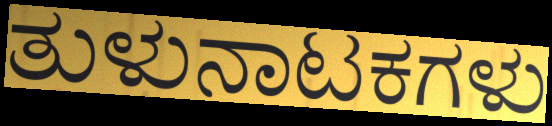
ತುಳುನಾಟಕಗಳು